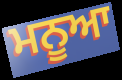
ਮਨੂਆ